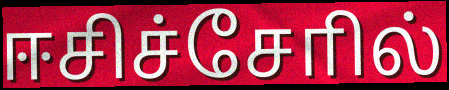
ஈசிச்சேரில்